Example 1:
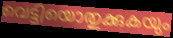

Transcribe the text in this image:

വെട്ടിയൊതുക്കുകയും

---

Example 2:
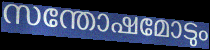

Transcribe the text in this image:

സന്തോഷമോടും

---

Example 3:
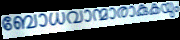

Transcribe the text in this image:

ബോധവാന്മാരാകുകയും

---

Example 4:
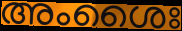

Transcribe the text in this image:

അംശൈഃ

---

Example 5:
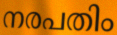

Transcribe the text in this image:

നരപതിം